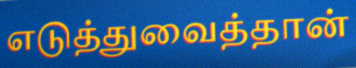
எடுத்துவைத்தான்